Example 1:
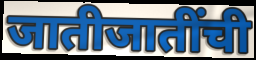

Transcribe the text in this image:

जातीजातींची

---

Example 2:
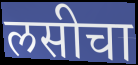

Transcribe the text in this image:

लसीचा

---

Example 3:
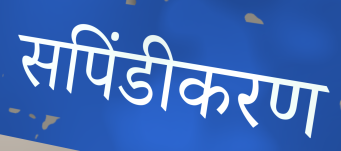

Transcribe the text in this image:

सपिंडीकरण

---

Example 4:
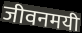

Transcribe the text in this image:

जीवनमयी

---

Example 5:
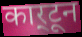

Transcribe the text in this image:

कार्टून